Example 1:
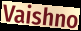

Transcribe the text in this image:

Vaishno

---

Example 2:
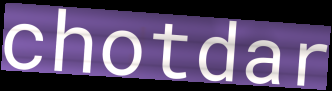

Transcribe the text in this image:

chotdar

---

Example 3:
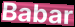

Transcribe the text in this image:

Babar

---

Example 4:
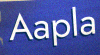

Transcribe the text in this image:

Aapla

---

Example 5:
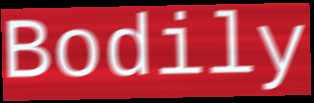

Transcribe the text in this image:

Bodily